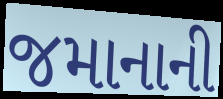
જમાનાની